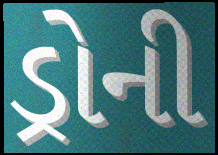
ડ્રોની